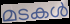
മടകൾ